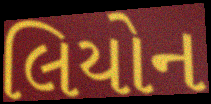
લિયોન